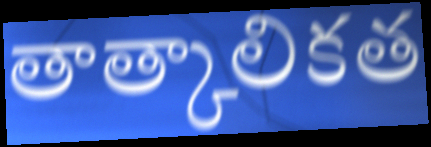
తాత్కాలికత